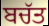
ਬਚੱਤ